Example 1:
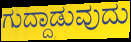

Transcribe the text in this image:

ಗುದ್ದಾಡುವುದು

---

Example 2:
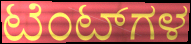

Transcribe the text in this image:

ಟೆಂಟ್‌ಗಳ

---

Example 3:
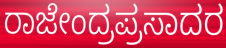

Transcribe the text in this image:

ರಾಜೇಂದ್ರಪ್ರಸಾದರ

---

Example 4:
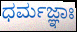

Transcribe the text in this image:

ಧರ್ಮಜ್ಞಾಃ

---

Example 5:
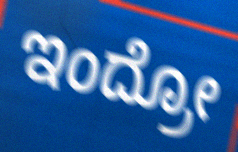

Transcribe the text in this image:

ಇಂದ್ರೋ